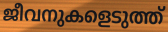
ജീവനുകളെടുത്ത്